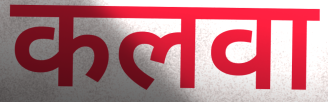
कलवा